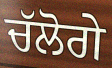
ਚੱਲੋਗੇ